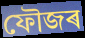
ফৌজৰ